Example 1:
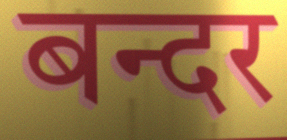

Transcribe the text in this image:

बन्दर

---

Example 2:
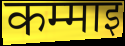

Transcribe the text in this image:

कम्माइ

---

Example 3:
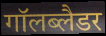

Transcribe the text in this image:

गॉलब्लैडर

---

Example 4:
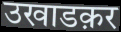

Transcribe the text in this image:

उखाडक़र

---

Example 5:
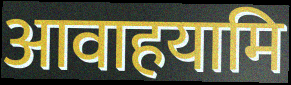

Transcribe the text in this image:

आवाहयामि